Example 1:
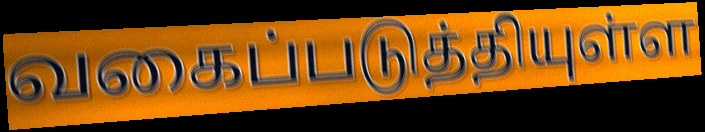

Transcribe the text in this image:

வகைப்படுத்தியுள்ள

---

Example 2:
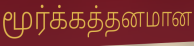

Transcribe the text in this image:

மூர்க்கத்தனமான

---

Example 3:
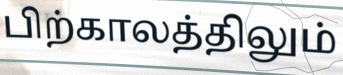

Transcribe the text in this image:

பிற்காலத்திலும்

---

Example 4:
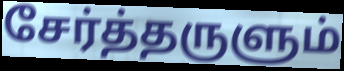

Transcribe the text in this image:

சேர்த்தருளும்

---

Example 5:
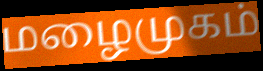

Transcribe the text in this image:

மழைமுகம்